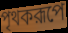
পৃথকরূপে